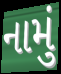
નામું